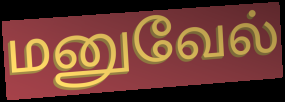
மனுவேல்